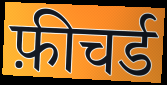
फ़ीचर्ड